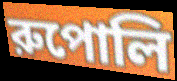
রুপোলি